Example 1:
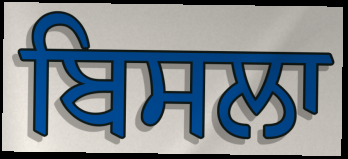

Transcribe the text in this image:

ਬਿਸਲਾ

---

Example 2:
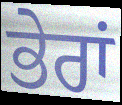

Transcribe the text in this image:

ਭੇਰਾਂ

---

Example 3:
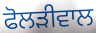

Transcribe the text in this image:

ਫੋਲੜੀਵਾਲ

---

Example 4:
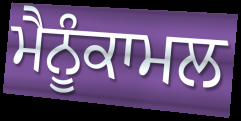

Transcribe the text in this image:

ਮੈਨੂੰਕਾਮਲ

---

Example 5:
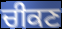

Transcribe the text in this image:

ਚੀਕਣ